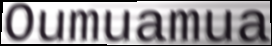
Oumuamua